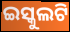
ଇସ୍କୁଲଟି